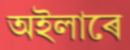
অইলাৰে